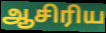
ஆசிரிய